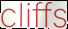
cliffs